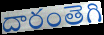
దారంతెగి